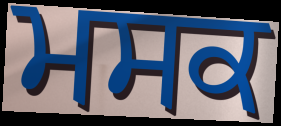
ਮਸਕ